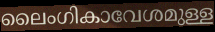
ലൈംഗികാവേശമുള്ള